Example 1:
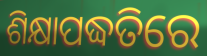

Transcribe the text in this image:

ଶିକ୍ଷାପଦ୍ଧତିରେ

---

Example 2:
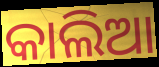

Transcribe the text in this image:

କାଲିଆ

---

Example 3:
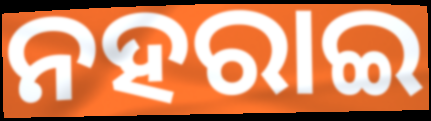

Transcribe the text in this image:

ନହରାଇ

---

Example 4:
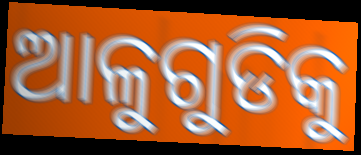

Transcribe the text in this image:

ଆଳୁଗୁଡିକୁ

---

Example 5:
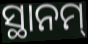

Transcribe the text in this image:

ସ୍ଥାନମ୍